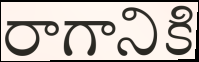
రాగానికి